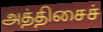
அத்திசைச்